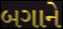
બગાને